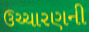
ઉચ્ચારણની